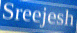
Sreejesh